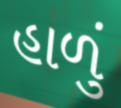
હાળું